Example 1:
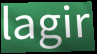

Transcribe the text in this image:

lagir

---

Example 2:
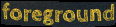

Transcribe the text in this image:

foreground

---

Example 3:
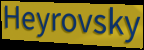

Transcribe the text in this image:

Heyrovsky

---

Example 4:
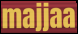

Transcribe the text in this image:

majjaa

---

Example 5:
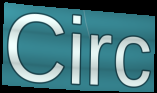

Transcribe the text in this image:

Circ